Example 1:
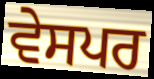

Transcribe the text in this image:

ਵੇਸਪਰ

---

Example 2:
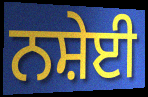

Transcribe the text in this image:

ਨਸ਼ੇਈ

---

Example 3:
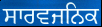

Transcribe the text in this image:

ਸਾਰਵਜਨਿਕ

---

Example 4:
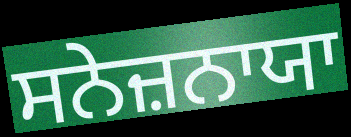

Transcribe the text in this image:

ਸਨੇਜ਼ਨਾਯਾ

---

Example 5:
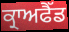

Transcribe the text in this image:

ਕ੍ਰਾਅਫੈੱਡ